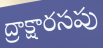
ద్రాక్షారసపు